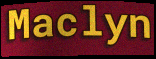
Maclyn